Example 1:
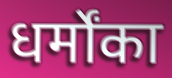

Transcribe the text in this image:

धर्मोंका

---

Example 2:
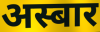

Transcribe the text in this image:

अस्बार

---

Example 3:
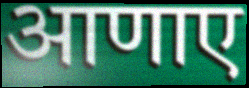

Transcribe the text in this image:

आणाए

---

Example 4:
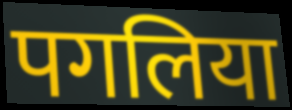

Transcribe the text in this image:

पगलिया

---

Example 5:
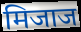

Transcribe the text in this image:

मिजाज